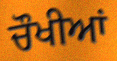
ਚੌਖੀਆਂ